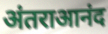
अंतराआनंद